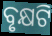
ବୃକ୍ଷଟି